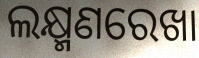
ଲକ୍ଷ୍ମଣରେଖା